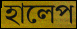
হালেপ